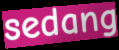
sedang